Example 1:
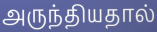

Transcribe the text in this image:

அருந்தியதால்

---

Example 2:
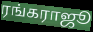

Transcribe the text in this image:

ரங்கராஜூ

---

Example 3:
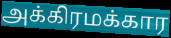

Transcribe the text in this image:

அக்கிரமக்கார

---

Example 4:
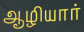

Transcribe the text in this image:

ஆழியார்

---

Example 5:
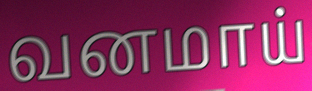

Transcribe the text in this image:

வனமாய்